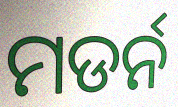
ମଡର୍ନ